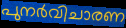
പുനർവിചാരണ